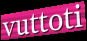
vuttoti